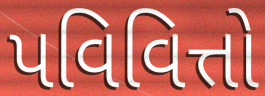
પવિવિત્તો